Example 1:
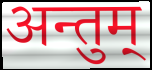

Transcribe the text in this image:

अन्तुम्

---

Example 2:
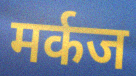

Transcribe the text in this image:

मर्कज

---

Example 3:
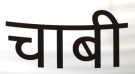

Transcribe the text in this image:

चाबी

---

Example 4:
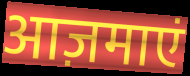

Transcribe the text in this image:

आज़माएं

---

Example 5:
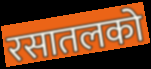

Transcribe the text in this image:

रसातलको